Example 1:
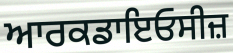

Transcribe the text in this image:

ਆਰਕਡਾਇਓਸੀਜ਼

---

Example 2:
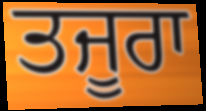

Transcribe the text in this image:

ਤਜੂਰਾ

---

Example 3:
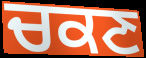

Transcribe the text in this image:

ਚਕਣ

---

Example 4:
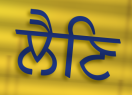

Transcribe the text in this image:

ਲੈਣਿ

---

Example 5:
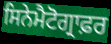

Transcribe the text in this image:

ਸਿਨੇਮੈਟੋਗ੍ਰਾਫ਼ਰ